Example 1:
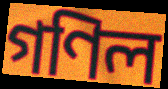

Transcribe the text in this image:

গণিল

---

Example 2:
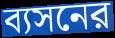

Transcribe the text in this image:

ব্যসনের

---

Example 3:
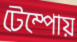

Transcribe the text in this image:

টেম্পোয়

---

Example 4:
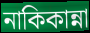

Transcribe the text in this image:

নাকিকান্না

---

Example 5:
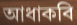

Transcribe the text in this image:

আধাকবি